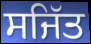
ਸਜਿੱਤ